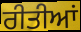
ਰੀਤੀਆਂ